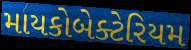
માયકોબેક્ટેરિયમ